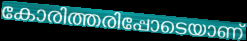
കോരിത്തരിപ്പോടെയാണ്